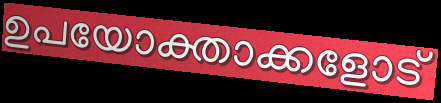
ഉപയോക്താക്കളോട്